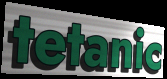
tetanic